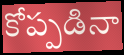
కోప్పడినా